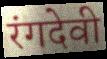
रंगदेवी